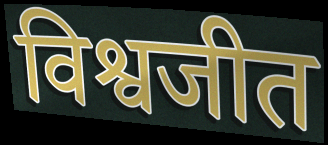
विश्वजीत